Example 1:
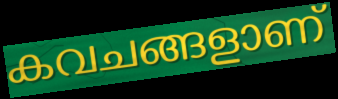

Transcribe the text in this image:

കവചങ്ങളാണ്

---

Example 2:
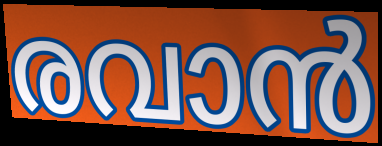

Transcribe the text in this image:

രവാൻ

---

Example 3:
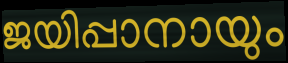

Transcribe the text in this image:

ജയിപ്പാനായും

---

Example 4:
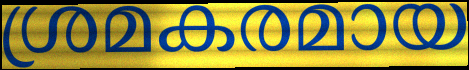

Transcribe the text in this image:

ശ്രമകരമായ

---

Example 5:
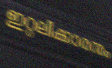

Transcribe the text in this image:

ഇറ്റലിക്കാരനും